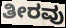
ತೀರವು